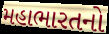
મહાભારતનો